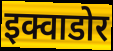
इक्वाडोर